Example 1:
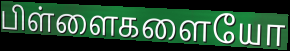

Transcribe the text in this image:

பிள்ளைகளையோ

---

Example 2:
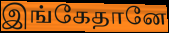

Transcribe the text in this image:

இங்கேதானே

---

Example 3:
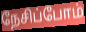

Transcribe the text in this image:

நேசிப்போம்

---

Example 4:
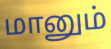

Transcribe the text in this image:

மானும்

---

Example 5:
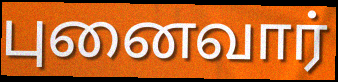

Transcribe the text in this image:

புனைவார்